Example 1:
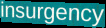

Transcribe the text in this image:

insurgency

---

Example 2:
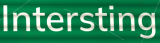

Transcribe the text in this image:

Intersting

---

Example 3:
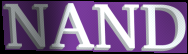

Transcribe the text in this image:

NAND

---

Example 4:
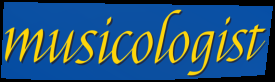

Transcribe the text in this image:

musicologist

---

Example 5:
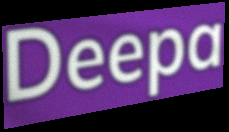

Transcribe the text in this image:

Deepa